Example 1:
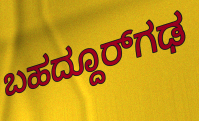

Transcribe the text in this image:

ಬಹದ್ದೂರ್‌ಗಢ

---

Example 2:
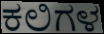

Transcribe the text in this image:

ಕಲಿಗಳ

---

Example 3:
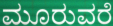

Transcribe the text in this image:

ಮೂರುವರೆ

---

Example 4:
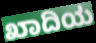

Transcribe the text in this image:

ಖಾದಿಯ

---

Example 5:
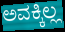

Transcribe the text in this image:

ಅವಕ್ಕಿಲ್ಲ